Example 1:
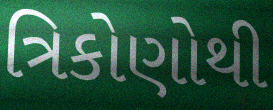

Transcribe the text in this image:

ત્રિકોણોથી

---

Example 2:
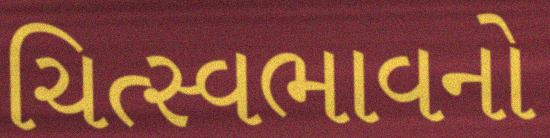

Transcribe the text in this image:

ચિત્સ્વભાવનો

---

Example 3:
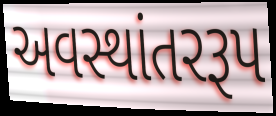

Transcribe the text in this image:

અવસ્થાંતરરૂપ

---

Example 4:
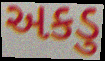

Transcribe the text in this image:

અકડુ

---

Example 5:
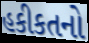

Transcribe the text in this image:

હકીકતનો